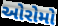
ઓરોમો